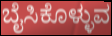
ಬೈಸಿಕೊಳ್ಳುವ